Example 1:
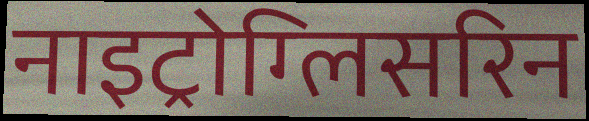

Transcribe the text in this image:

नाइट्रोग्लिसरिन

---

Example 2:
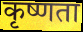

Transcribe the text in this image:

कृष्णता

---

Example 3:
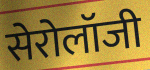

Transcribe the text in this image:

सेरोलॉजी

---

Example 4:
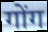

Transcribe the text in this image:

गोंग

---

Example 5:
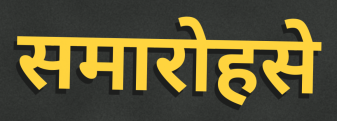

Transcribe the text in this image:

समारोहसे